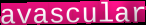
avascular